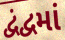
દ્વંદ્વમાં